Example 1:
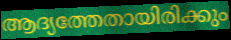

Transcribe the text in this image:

ആദ്യത്തേതായിരിക്കും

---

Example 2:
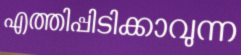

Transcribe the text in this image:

എത്തിപ്പിടിക്കാവുന്ന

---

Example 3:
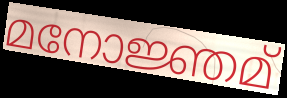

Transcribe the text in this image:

മനോജ്ഞമ്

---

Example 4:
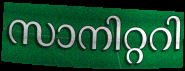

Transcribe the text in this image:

സാനിറ്ററി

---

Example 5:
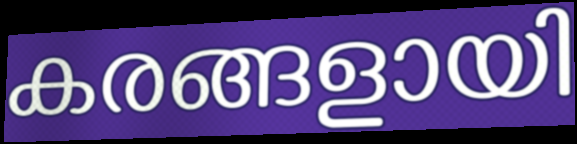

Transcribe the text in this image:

കരങ്ങളായി